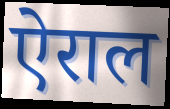
ऐराल